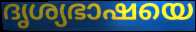
ദൃശ്യഭാഷയെ